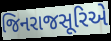
જિનરાજસૂરિએ